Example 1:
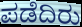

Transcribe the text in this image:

ಪಡೆದಿರು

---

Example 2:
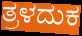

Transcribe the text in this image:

ತ್ರಳದುಕ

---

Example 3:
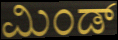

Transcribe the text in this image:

ಮಿಂಡ್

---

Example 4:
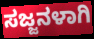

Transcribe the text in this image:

ಸಜ್ಜನಳಾಗಿ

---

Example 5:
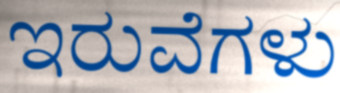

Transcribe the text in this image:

ಇರುವೆಗಳು